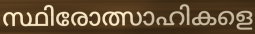
സ്ഥിരോത്സാഹികളെ